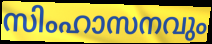
സിംഹാസനവും